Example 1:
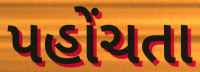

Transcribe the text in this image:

પહોંચતા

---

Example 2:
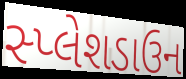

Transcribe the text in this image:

સ્પ્લેશડાઉન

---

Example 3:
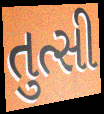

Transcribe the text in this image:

તુત્સી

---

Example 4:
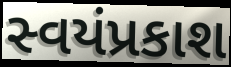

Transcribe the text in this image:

સ્વયંપ્રકાશ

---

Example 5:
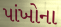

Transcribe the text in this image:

પાંખોના